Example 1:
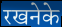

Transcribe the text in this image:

रखनेके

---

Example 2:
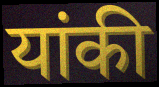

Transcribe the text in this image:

यांकी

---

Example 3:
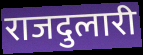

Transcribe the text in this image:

राजदुलारी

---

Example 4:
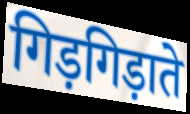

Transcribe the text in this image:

गिड़गिड़ाते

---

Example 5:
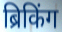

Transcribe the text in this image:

ब्रिकिंग